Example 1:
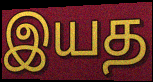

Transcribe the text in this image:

இயத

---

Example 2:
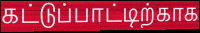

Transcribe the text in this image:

கட்டுப்பாட்டிற்காக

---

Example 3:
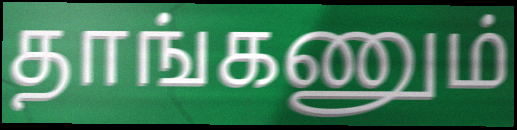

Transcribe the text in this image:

தாங்கணும்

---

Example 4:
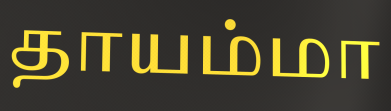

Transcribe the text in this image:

தாயம்மா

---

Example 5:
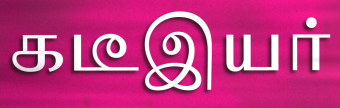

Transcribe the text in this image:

கடீஇயர்